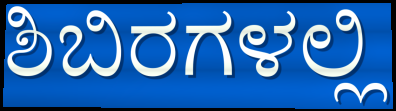
ಶಿಬಿರಗಳಲ್ಲಿ